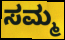
ಸಮ್ಮ